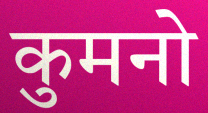
कुमनो